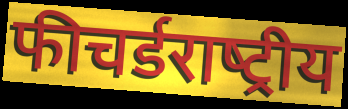
फीचर्डराष्ट्रीय